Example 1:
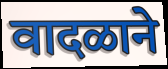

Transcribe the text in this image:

वादळाने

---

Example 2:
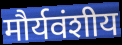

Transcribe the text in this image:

मौर्यवंशीय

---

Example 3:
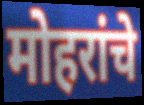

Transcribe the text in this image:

मोहरांचे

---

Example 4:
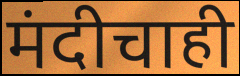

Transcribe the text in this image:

मंदीचाही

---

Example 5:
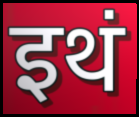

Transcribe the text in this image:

इथं